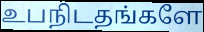
உபநிடதங்களே